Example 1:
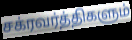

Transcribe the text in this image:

சக்ரவர்த்திகளும்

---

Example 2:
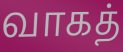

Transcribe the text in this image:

வாகத்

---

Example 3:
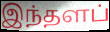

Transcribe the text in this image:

இந்தளப்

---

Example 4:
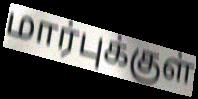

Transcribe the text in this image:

மார்புக்குள்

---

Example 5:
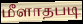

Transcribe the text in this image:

மீளாதபடி